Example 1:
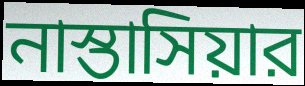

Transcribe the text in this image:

নাস্তাসিয়ার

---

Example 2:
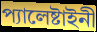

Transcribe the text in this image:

প্যালেষ্টাইনী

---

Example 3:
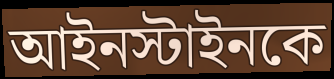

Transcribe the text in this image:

আইনস্টাইনকে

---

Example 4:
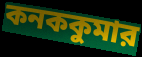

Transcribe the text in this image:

কনককুমার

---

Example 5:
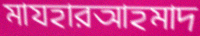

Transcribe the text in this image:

মাযহারআহমাদ